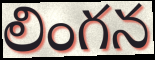
లింగన